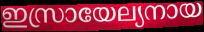
ഇസ്രായേല്യനായ